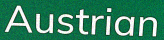
Austrian